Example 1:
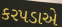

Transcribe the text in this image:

કરપડાએ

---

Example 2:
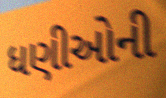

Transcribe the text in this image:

ધણીઓની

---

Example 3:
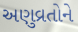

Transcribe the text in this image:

અણુવ્રતોને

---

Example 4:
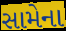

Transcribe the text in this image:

સામેના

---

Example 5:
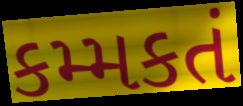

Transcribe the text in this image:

કમ્મકતં